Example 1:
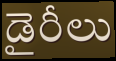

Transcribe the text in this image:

డైరీలు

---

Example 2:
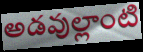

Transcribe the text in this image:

అడవుల్లాంటి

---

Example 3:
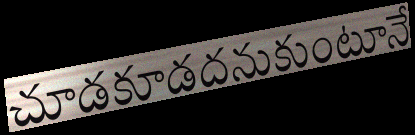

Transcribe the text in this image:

చూడకూడదనుకుంటూనే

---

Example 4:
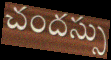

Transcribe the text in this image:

చందస్సు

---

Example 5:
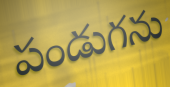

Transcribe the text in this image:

పండుగను